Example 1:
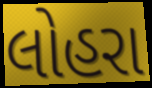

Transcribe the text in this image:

લોહરા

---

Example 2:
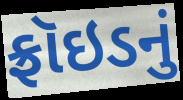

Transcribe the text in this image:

ફ્રૉઇડનું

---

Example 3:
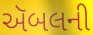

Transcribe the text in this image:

ઍબલની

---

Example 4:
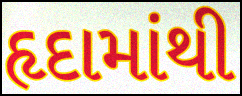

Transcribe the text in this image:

હૃદામાંથી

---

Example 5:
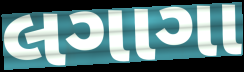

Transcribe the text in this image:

લગાગા